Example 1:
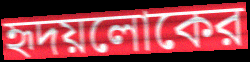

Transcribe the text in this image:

হৃদয়লোকের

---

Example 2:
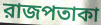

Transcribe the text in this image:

রাজপতাকা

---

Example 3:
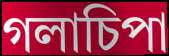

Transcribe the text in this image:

গলাচিপা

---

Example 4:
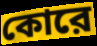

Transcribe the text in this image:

কোরে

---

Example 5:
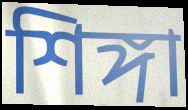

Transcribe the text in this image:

শিঙ্গা